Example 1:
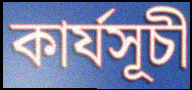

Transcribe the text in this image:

কাৰ্যসূচী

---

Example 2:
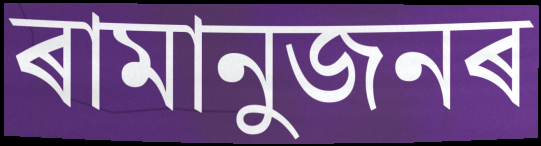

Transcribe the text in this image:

ৰামানুজনৰ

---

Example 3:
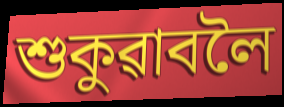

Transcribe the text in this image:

শুকুৱাবলৈ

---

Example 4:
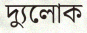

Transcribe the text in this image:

দ্যুলোক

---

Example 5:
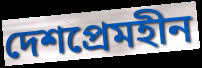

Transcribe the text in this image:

দেশপ্ৰেমহীন